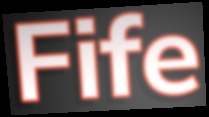
Fife